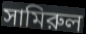
সামিরুল